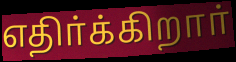
எதிர்க்கிறார்